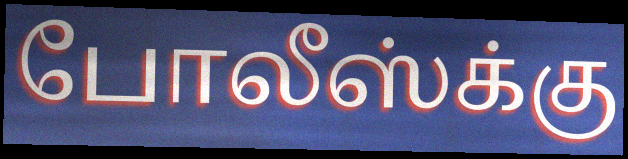
போலீஸ்க்கு